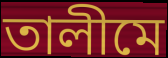
তালীমে